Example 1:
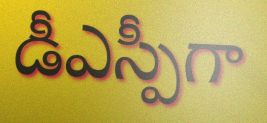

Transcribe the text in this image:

డీఎస్పీగా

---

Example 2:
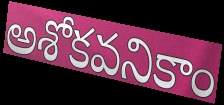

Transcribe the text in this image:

అశోకవనికాం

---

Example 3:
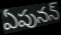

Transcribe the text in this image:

ఏపునన్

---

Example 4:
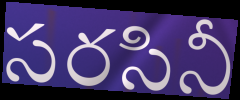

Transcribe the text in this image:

సరసినీ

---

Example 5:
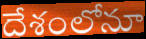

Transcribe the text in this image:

దేశంలోనూ